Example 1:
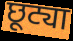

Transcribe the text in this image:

छूट्या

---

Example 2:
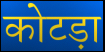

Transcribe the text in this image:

कोटड़ा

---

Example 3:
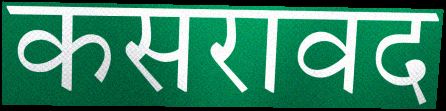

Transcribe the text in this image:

कसरावद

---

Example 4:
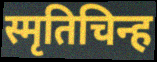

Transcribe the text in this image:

स्मृतिचिन्ह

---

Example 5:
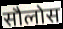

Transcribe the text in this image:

सौलोस